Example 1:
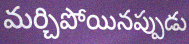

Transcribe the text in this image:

మర్చిపోయినప్పుడు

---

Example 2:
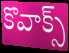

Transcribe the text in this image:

కొవాక్స్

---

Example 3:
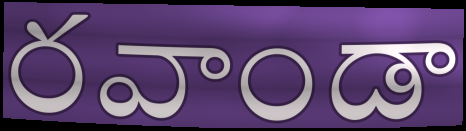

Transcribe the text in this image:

రవాండా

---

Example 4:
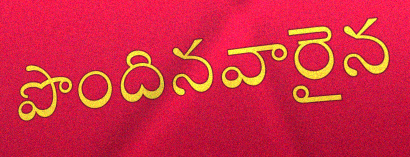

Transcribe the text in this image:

పొందినవారైన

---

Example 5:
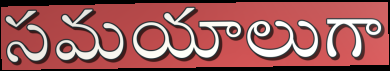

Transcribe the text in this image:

సమయాలుగా